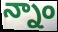
న్నాం